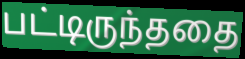
பட்டிருந்ததை